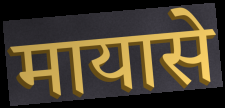
मायासे